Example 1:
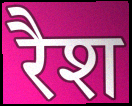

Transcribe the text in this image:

रैश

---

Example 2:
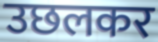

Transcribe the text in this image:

उछलकर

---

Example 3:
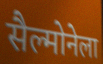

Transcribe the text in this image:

सैल्मोनेला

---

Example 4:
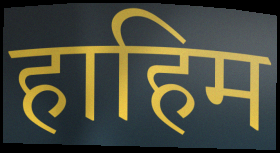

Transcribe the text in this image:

हाहिम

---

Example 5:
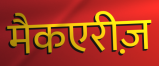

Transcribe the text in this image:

मैकएरीज़